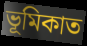
ভূমিকাত